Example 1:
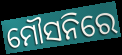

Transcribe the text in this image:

ମୌସନିରେ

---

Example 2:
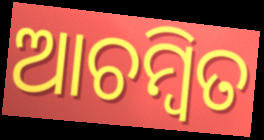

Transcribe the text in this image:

ଆଚମ୍ବିତ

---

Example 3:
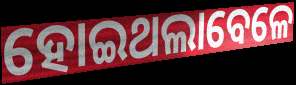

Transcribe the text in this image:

ହୋଇଥଲାବେଳେ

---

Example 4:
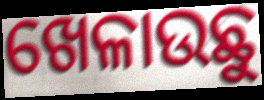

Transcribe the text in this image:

ଖେଳାଉଛୁ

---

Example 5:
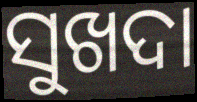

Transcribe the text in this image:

ସୁଖଦା